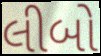
લીબો